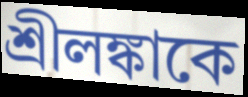
শ্রীলঙ্কাকে